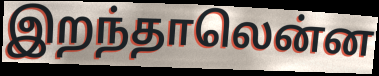
இறந்தாலென்ன